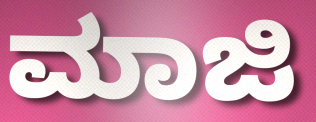
ಮಾಜಿ